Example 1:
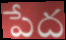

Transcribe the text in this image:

పేద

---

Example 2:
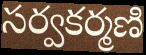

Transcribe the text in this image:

సర్వకర్మణి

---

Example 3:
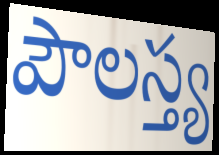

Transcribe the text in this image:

పౌలస్త్య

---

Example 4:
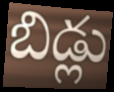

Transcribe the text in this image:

బిడ్లు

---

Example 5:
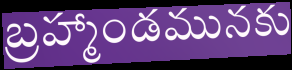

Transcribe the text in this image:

బ్రహ్మాండమునకు